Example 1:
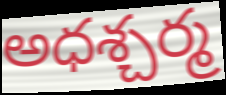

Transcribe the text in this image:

అధశ్చర్మ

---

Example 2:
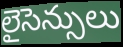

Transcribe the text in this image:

లైసెన్సులు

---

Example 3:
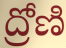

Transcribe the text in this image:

ద్రోణి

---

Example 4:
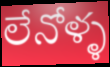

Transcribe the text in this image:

లేనోళ్ళ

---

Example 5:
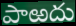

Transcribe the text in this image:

పాఱదు